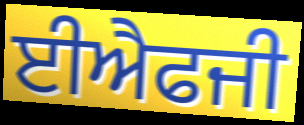
ਈਐਫਜੀ